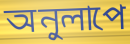
অনুলাপে